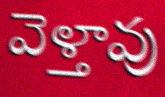
వెళ్తావు